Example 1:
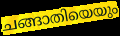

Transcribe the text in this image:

ചങ്ങാതിയെയും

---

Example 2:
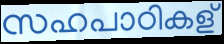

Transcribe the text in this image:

സഹപാഠികള്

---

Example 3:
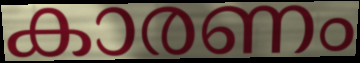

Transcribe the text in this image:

കാരണം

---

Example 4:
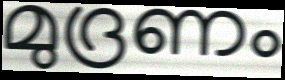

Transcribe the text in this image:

മുദ്രണം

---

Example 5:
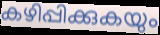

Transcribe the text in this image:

കഴിപ്പിക്കുകയും